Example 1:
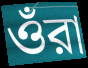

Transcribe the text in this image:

ওঁরা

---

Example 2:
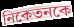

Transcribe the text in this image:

নিকেতনকে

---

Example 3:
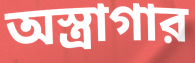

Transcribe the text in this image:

অস্ত্রাগার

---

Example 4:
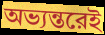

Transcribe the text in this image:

অভ্যন্তরেই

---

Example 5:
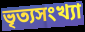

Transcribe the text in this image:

ভৃত্যসংখ্যা